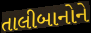
તાલીબાનોને